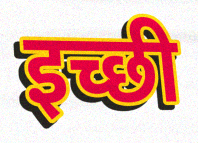
इच्छी